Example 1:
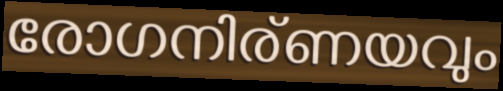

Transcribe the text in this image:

രോഗനിര്ണയവും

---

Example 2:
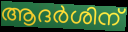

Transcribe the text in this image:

ആദർശിന്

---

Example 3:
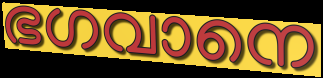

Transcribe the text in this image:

ഭഗവാനെ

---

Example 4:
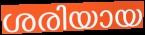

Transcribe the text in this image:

ശരിയായ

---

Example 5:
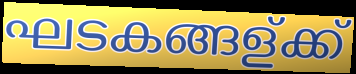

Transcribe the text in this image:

ഘടകങ്ങള്ക്ക്